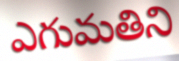
ఎగుమతిని